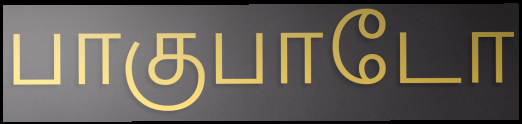
பாகுபாடோ